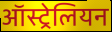
ऑस्ट्रेलियन